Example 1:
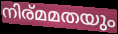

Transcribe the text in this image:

നിര്മമതയും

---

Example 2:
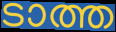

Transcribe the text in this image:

ടാത്ത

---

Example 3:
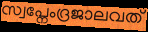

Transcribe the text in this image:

സ്വപ്നേംദ്രജാലവത്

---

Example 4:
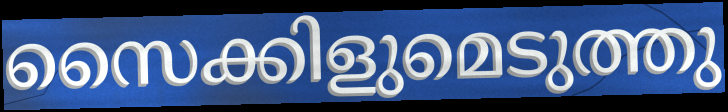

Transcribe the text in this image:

സൈക്കിളുമെടുത്തു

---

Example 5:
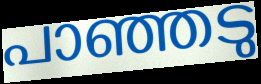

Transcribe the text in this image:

പാഞ്ഞടു